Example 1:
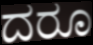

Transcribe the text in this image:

ದರೂ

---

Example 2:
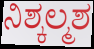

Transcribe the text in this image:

ನಿಶ್ಕಲ್ಮಶ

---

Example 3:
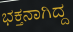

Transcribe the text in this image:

ಭಕ್ತನಾಗಿದ್ದ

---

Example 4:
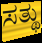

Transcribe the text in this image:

ಸತ್ಥು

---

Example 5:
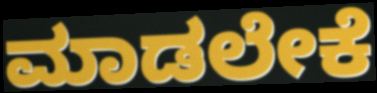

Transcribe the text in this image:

ಮಾಡಲೇಕೆ